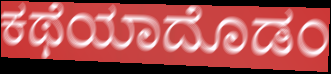
ಕಥೆಯಾದೊಡಂ